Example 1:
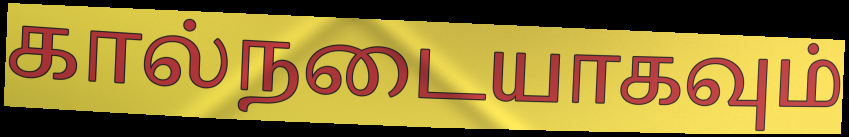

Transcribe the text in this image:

கால்நடையாகவும்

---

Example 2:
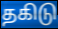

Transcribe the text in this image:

தகிடு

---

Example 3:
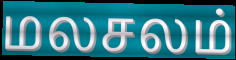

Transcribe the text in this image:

மலசலம்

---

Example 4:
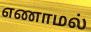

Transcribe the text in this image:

எணாமல்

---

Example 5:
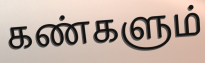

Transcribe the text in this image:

கண்களும்